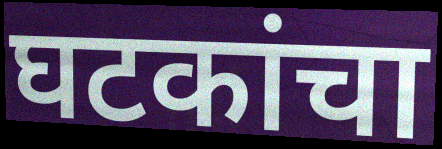
घटकांचा